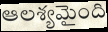
ఆలశ్యమైంది